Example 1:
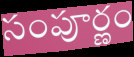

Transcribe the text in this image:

సంపూర్ణం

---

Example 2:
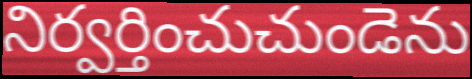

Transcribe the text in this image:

నిర్వర్తించుచుండెను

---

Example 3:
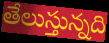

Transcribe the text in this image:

తేలుస్తున్నది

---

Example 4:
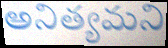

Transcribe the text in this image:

అనిత్యమని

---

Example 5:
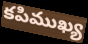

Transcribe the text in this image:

కపిముఖ్య